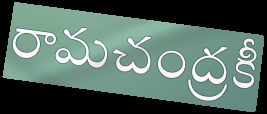
రామచంద్రకీ